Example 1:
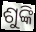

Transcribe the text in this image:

ଶୁଙ୍କି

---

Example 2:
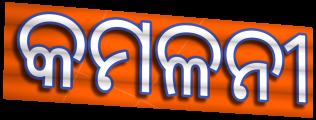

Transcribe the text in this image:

କମଳନୀ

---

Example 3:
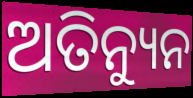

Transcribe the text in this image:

ଅତିନ୍ୟୁନ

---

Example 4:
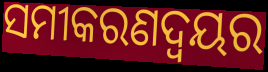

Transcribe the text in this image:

ସମୀକରଣଦ୍ଵୟର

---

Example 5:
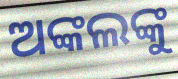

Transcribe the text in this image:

ଅଙ୍କଲଙ୍କୁ